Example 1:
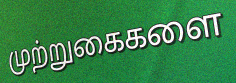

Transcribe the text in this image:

முற்றுகைகளை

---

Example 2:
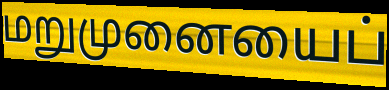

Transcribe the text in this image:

மறுமுனையைப்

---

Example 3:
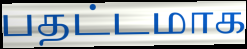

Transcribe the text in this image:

பதட்டமாக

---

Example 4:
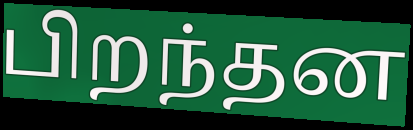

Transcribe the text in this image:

பிறந்தன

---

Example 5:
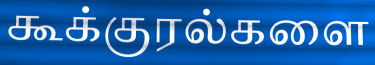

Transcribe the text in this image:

கூக்குரல்களை